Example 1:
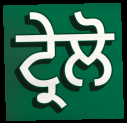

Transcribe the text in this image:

ਟ੍ਰੇਲੋ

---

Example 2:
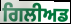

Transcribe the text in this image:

ਗਿਲੀਅਡ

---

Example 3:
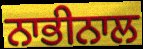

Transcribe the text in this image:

ਨਾਭੀਨਾਲ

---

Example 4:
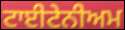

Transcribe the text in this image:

ਟਾਈਟੇਨੀਅਮ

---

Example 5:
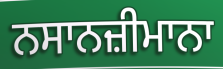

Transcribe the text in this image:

ਨਸਾਨਜ਼ੀਮਾਨਾ